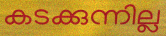
കടക്കുന്നില്ല